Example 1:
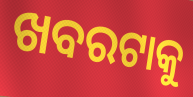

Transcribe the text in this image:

ଖବରଟାକୁ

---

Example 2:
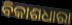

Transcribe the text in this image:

ବିକାଶଧାରା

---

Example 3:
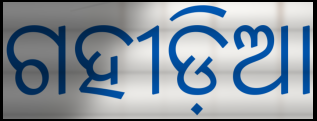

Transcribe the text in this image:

ଗହୀଡ଼ିଆ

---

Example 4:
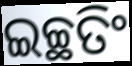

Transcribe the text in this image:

ଇଚ୍ଛତିଂ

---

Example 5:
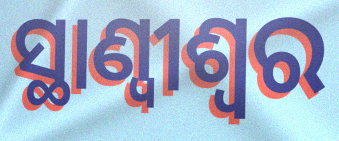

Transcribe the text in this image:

ସ୍ଥାଣ୍ୱୀଶ୍ଵର